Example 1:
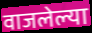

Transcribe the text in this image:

वाजलेल्या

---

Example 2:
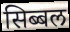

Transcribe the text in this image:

सिब्बल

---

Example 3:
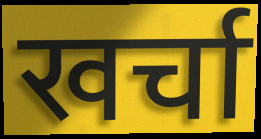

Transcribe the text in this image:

खर्चा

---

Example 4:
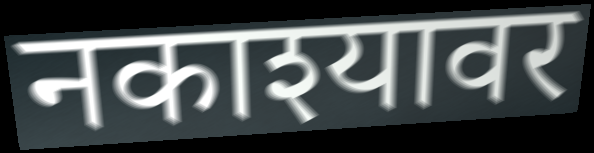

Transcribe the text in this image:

नकाश्यावर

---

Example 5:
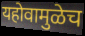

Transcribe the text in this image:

यहोवामुळेच